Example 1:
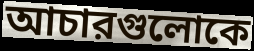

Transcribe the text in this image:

আচারগুলোকে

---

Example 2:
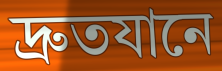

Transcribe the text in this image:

দ্রুতযানে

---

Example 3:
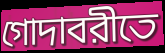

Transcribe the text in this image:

গোদাবরীতে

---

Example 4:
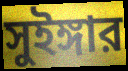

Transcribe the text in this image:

সুইঙ্গার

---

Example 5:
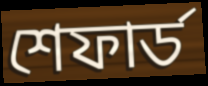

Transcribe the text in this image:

শেফার্ড